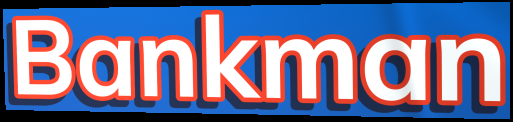
Bankman